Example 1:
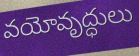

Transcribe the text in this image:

వయోవృద్ధులు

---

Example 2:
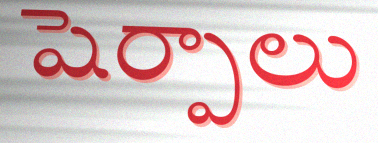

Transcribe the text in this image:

షెర్పాలు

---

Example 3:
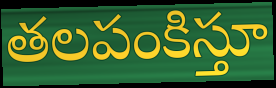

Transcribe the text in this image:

తలపంకిస్తూ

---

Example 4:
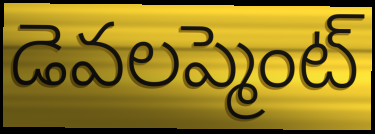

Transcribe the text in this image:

డెవలప్మెంట్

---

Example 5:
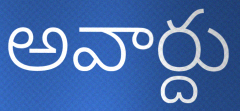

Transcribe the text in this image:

అవార్దు